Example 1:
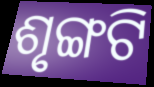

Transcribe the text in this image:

ଶୃଙ୍ଗଟି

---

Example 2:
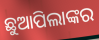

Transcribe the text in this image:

ଛୁଆପିଲାଙ୍କର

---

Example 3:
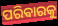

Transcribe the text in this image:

ପରିଵାରକୁ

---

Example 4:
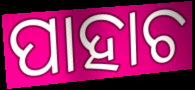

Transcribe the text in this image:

ପାହାଚ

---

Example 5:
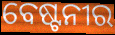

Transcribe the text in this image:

ବେଷ୍ଟନୀର